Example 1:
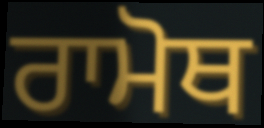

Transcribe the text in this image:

ਰਾਮੋਥ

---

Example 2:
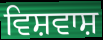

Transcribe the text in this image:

ਵਿਸ਼ਵਾਸ਼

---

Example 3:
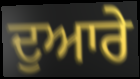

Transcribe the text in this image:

ਦੁਆਰੇ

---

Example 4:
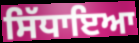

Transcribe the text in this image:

ਸਿੱਧਾਇਆ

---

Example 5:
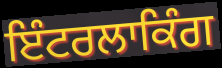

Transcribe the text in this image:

ਇੰਟਰਲਾਕਿੰਗ